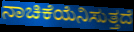
ನಾಚಿಕೆಯೆನಿಸುತ್ತದೆ